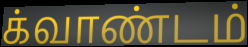
க்வாண்டம்